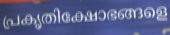
പ്രകൃതിക്ഷോഭങ്ങളെ